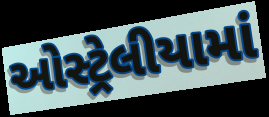
ઓસ્ટ્રેલીયામાં